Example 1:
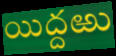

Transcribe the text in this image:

యిద్దఱు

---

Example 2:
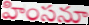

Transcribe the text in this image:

హింసనూ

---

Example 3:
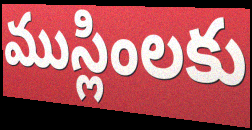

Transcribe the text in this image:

ముస్లింలకు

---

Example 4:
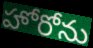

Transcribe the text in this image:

హోరోను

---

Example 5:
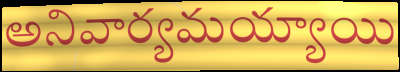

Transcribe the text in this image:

అనివార్యమయ్యాయి